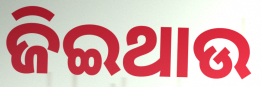
ଜିଇଥାଉ